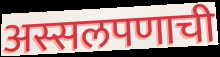
अस्सलपणाची